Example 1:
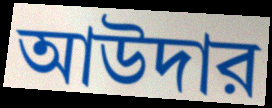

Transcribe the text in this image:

আউদার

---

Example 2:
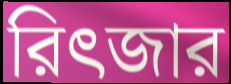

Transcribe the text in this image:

রিৎজার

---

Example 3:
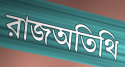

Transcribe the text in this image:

রাজঅতিথি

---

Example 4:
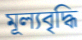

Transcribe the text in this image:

মূল্যবৃদ্ধি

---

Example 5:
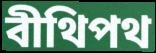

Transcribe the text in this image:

বীথিপথ